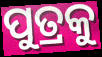
ପୁତ୍ରକୁ